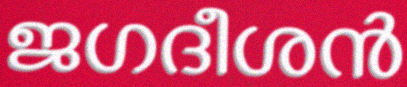
ജഗദീശൻ